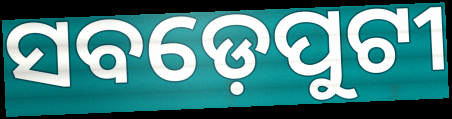
ସବଡ଼େପୁଟୀ